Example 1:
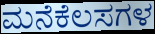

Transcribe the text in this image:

ಮನೆಕೆಲಸಗಳ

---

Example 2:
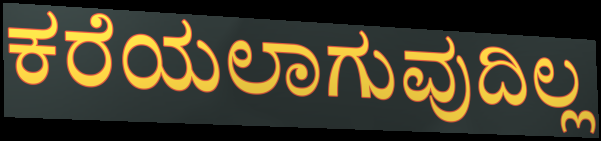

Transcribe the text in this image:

ಕರೆಯಲಾಗುವುದಿಲ್ಲ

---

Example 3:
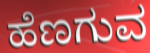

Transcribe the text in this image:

ಹೆಣಗುವ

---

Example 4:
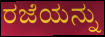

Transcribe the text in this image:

ರಜೆಯನ್ನು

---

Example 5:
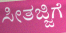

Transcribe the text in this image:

ಸೀತಜ್ಜಿಗೆ